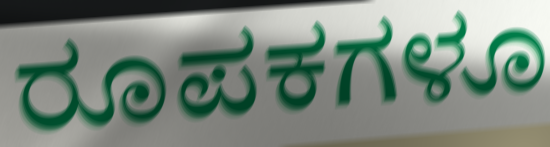
ರೂಪಕಗಳೂ